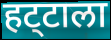
हट्‌टाला